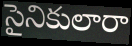
సైనికులారా